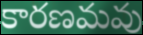
కారణమవు